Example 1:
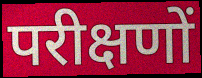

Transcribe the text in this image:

परीक्षणों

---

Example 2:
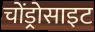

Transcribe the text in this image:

चोंड्रोसाइट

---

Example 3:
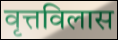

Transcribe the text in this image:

वृत्तविलास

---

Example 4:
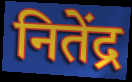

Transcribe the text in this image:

नितेंद्र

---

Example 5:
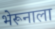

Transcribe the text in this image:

भेरूनाला